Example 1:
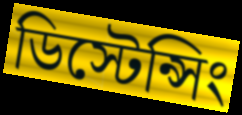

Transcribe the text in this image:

ডিস্টেন্সিং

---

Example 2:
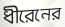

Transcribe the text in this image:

ধীরেনের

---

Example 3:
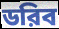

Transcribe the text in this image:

ডরিব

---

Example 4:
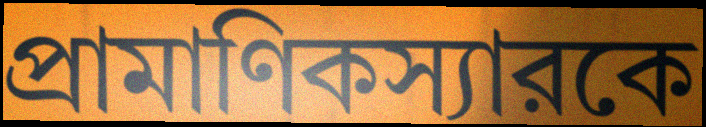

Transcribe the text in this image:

প্রামাণিকস্যারকে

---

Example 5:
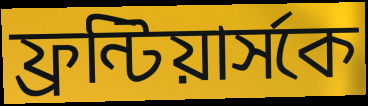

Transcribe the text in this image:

ফ্রন্টিয়ার্সকে